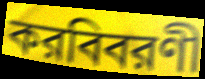
করবিবরণী